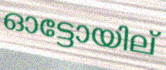
ഓട്ടോയില്